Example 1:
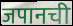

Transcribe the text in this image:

जपानची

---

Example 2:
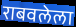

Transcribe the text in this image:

राबवलेला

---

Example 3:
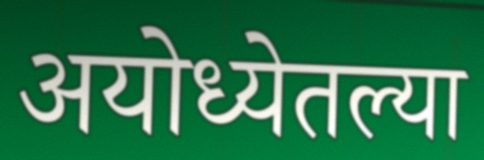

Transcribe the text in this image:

अयोध्येतल्या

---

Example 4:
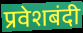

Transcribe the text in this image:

प्रवेशबंदी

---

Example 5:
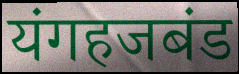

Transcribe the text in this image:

यंगहजबंड